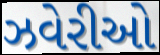
ઝવેરીઓ